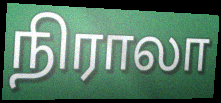
நிராலா